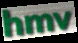
hmv